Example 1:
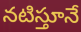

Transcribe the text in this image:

నటిస్తూనే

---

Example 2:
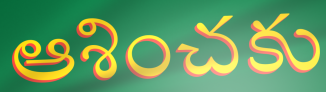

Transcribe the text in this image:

ఆశించకు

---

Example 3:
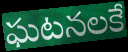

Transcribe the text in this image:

ఘటనలకే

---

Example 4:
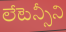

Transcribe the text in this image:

లేటెన్సీని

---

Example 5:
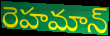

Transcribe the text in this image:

రెహమాన్